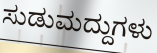
ಸುಡುಮದ್ದುಗಳು